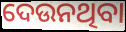
ଦେଉନଥିବା